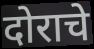
दोराचे